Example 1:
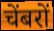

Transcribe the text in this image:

चेंबरों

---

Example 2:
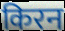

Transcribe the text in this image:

किरन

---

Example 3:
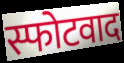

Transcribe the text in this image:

स्फोटवाद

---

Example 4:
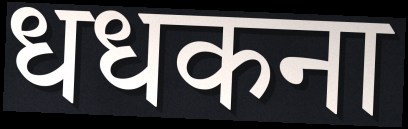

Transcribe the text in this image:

धधकना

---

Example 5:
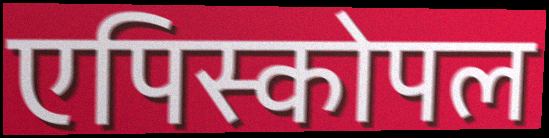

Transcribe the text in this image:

एपिस्कोपल